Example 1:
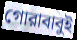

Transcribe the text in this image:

গোরাবাবুই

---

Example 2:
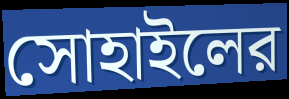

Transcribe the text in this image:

সোহাইলের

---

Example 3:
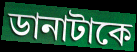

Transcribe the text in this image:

ডানাটাকে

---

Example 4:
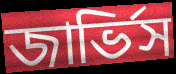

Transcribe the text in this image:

জার্ভিস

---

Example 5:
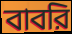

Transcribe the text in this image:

বাবরি